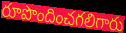
రూపొందించగలిగారు